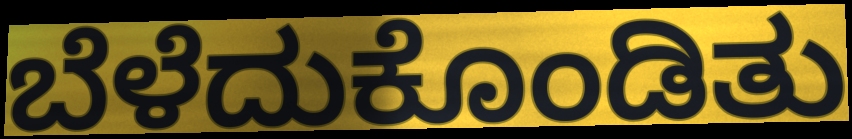
ಬೆಳೆದುಕೊಂಡಿತು